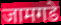
जामगडे